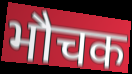
भौचक